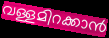
വള്ളമിറക്കാൻ